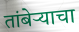
तांबेऱ्याचा